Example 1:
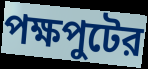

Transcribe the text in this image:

পক্ষপুটের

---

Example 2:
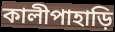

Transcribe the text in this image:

কালীপাহাড়ি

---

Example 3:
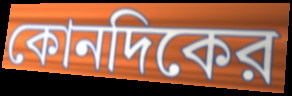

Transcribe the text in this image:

কোনদিকের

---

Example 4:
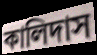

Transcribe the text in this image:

কালিদাস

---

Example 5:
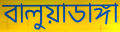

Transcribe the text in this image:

বালুয়াডাঙ্গা